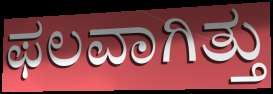
ಫಲವಾಗಿತ್ತು